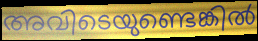
അവിടെയുണ്ടെങ്കിൽ